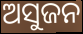
ଅସୁଜନ